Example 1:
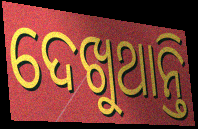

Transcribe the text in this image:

ଦେଖୁଥାନ୍ତି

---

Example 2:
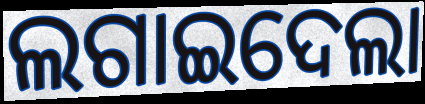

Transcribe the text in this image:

ଲଗାଇଦେଲା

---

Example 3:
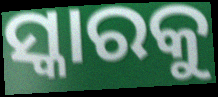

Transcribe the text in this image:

ସ୍କାରକୁ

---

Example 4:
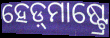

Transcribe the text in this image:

ହେଡ଼୍‌ମାଷ୍ଟ୍ରେ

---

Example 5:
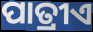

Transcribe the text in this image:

ପାତ୍ରୀଏ